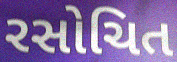
રસોચિત